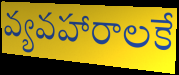
వ్యవహారాలకే